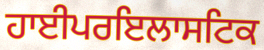
ਹਾਈਪਰਇਲਾਸਟਿਕ